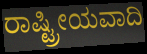
ರಾಷ್ಟ್ರೀಯವಾದಿ